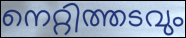
നെറ്റിത്തടവും